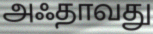
அஃதாவது